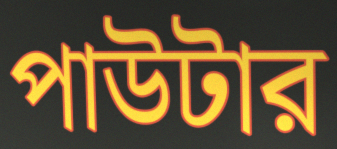
পাউটার